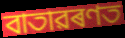
বাতাৱৰণত